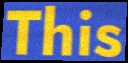
This